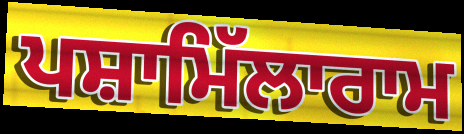
ਪਸ਼ਾਮਿੱਲਾਰਾਮ